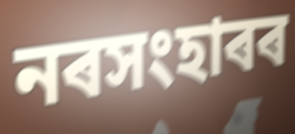
নৰসংহাৰৰ